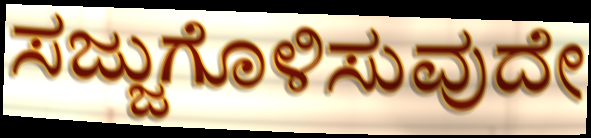
ಸಜ್ಜುಗೊಳಿಸುವುದೇ